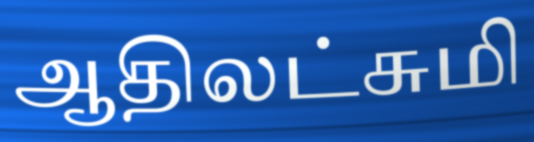
ஆதிலட்சுமி